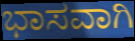
ಭಾಸವಾಗಿ